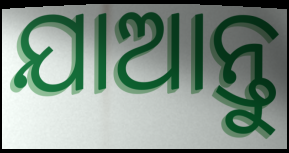
ଯାଆନ୍ତୁ